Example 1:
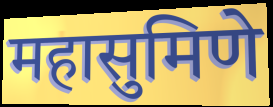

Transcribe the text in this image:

महासुमिणे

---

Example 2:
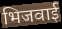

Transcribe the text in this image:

भिजवाई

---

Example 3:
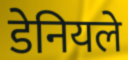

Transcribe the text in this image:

डेनियले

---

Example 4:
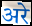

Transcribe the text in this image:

अरे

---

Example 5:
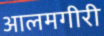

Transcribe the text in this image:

आलमगीरी